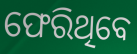
ଫେରିଥିବେ